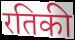
रतिकी